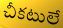
చీకటులే